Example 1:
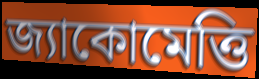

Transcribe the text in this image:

জ্যাকোমেত্তি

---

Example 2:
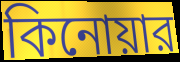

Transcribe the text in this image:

কিনোয়ার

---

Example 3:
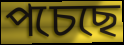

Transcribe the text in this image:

পচেছে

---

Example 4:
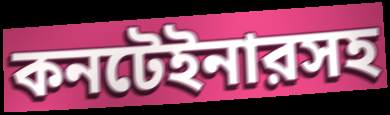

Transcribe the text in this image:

কনটেইনারসহ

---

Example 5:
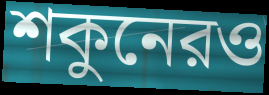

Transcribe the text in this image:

শকুনেরও